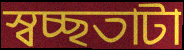
স্বচ্ছতাটা